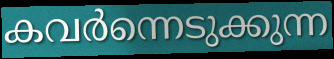
കവർന്നെടുക്കുന്ന